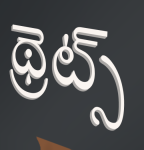
థ్రెట్స్